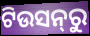
ଟିଉସନ୍‌ରୁ